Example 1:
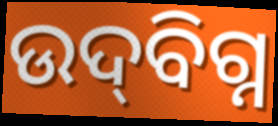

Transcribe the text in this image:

ଉଦ୍‍ବିଗ୍ନ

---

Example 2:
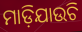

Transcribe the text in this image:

ମାଡ଼ିଯାଉଚି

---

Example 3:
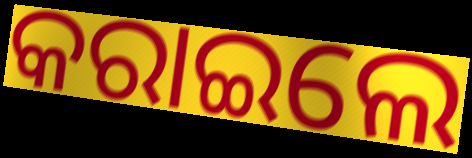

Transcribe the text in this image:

କରାଇଲେ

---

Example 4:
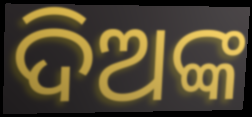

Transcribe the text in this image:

ଦିଅଙ୍କ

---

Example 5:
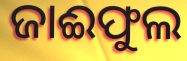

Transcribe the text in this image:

ଜାଈଫୁଲ